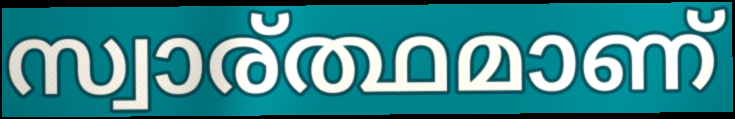
സ്വാര്ത്ഥമാണ്